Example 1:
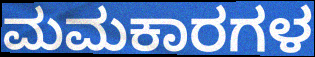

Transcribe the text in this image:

ಮಮಕಾರಗಳ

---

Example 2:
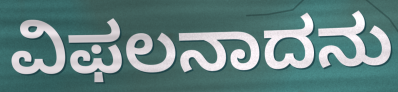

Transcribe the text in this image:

ವಿಫಲನಾದನು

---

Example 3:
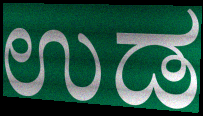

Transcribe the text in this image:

ಉಡ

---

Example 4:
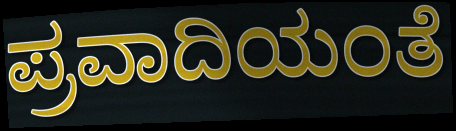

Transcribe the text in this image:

ಪ್ರವಾದಿಯಂತೆ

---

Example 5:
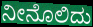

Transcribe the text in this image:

ನೀನೊಲಿದು